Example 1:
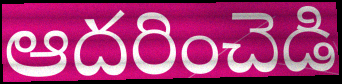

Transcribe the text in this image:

ఆదరించెడి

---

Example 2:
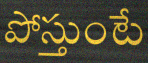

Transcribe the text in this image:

పోస్తుంటే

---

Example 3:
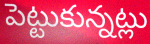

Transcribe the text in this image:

పెట్టుకున్నట్లు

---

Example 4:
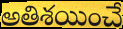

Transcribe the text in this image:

అతిశయించే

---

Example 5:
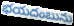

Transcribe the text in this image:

భయదంబును